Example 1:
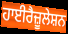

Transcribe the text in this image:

ਹਾਈਰੈਜ਼ੂਲੇਸ਼ਨ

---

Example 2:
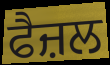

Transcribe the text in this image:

ਫੈਜ਼ਲ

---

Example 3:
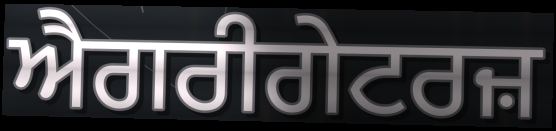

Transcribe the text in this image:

ਐਗਰੀਗੇਟਰਜ਼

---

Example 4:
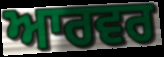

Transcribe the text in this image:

ਆਰਵਰ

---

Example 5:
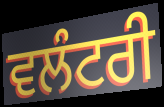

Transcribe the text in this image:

ਵਲੰਟਰੀ